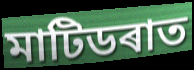
মাটিডৰাত